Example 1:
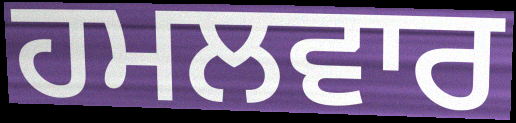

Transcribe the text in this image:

ਹਮਲਵਾਰ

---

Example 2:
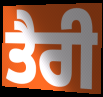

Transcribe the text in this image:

ਤੈਰੀ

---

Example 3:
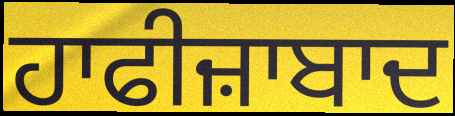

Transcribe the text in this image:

ਹਾਫੀਜ਼ਾਬਾਦ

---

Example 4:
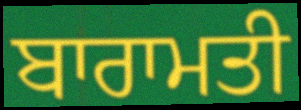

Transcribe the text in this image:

ਬਾਰਾਮਤੀ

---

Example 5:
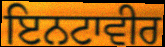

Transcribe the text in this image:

ਇਨਟਾਵੀਰ